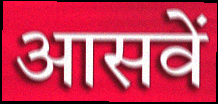
आसवें